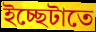
ইচ্ছেটাতে